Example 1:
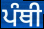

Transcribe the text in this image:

ਪੰਥੀ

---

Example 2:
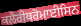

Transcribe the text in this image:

ਕਲੈਰੀਥਰੋਮਾਈਸਿਨ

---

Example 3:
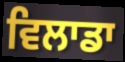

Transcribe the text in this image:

ਵਿਲਾਡਾ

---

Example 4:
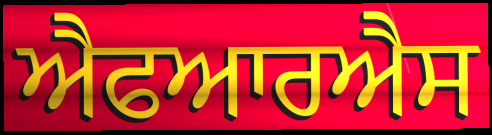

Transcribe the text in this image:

ਐਫਆਰਐਸ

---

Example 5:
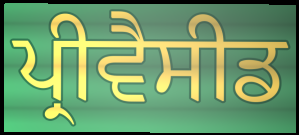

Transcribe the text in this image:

ਪ੍ਰੀਵੈਸੀਡ